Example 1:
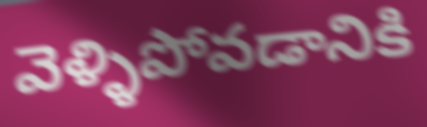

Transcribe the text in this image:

వెళ్ళిపోవడానికి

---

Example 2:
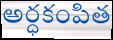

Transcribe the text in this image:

అర్ధకంపిత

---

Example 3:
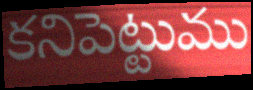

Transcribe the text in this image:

కనిపెట్టుము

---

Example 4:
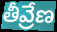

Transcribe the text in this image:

తీవ్రేణ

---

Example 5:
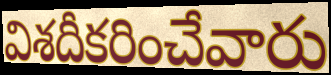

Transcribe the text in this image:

విశదీకరించేవారు